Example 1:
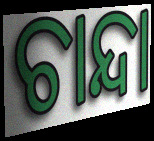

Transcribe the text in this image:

ଚାନ୍ଦା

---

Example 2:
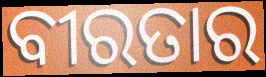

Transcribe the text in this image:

ବୀରତାର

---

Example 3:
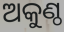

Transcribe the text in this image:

ଅକୁଣ୍ଠ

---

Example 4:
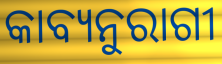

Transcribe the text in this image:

କାବ୍ୟନୁରାଗୀ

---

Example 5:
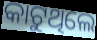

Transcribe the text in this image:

କାଟୁଥିଲେ